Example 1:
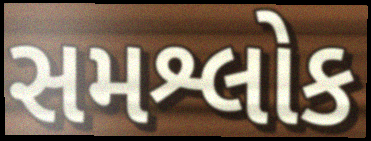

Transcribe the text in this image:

સમશ્લોક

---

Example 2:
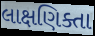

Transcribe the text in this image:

લાક્ષણિક્તા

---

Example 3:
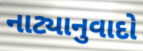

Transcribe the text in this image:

નાટ્યાનુવાદો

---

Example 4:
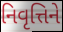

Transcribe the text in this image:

નિવૃત્તિને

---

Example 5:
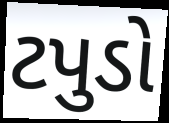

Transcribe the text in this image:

ટપુડો